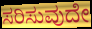
ಸರಿಸುವುದೇ